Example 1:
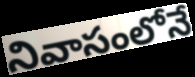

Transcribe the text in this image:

నివాసంలోనే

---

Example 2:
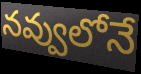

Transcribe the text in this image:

నవ్వులోనే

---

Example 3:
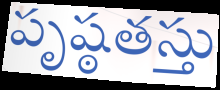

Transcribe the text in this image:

పృష్ఠతస్తు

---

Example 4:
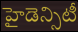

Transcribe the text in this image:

హైడెన్సిటీ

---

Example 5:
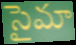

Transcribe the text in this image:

సైమా